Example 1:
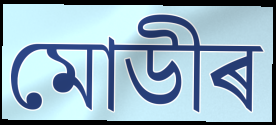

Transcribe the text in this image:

মোডীৰ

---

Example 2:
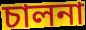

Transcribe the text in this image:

চালনা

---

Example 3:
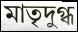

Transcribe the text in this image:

মাতৃদুগ্ধ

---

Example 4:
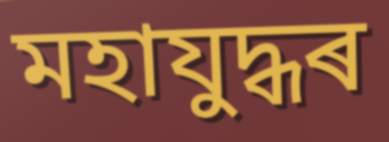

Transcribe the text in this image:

মহাযুদ্ধৰ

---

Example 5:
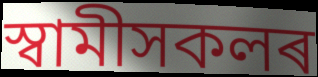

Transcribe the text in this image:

স্বামীসকলৰ